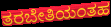
ತರಬೇತಿಯಂತಹ